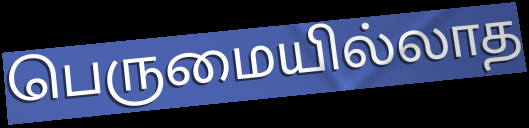
பெருமையில்லாத